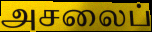
அசலைப்